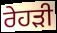
ਰੇਹੜੀ